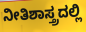
ನೀತಿಶಾಸ್ತ್ರದಲ್ಲಿ